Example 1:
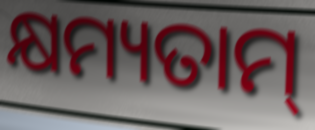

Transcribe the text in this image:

କ୍ଷମ୍ୟତାମ୍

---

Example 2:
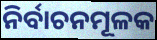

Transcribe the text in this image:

ନିର୍ବାଚନମୂଳକ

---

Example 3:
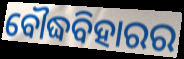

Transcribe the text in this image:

ବୌଦ୍ଧବିହାରର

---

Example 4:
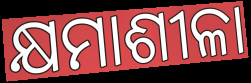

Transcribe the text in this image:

କ୍ଷମାଶୀଳା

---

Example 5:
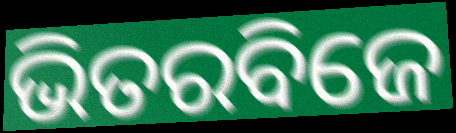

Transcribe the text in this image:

ଭିତରବିଜେ